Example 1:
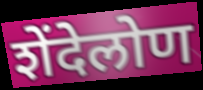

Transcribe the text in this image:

शेंदेलोण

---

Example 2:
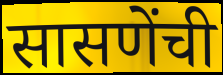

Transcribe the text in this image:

सासणेंची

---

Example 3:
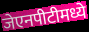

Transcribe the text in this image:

जेएनपीटीमध्ये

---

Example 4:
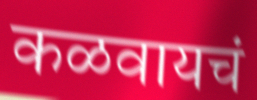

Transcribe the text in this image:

कळवायचं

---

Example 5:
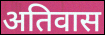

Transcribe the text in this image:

अतिवास